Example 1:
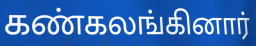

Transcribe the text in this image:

கண்கலங்கினார்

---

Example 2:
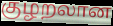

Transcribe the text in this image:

குழறலான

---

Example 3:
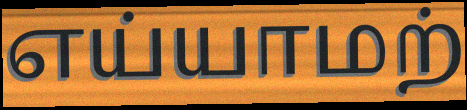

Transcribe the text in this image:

எய்யாமற்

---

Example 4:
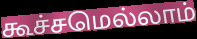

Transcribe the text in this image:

கூச்சமெல்லாம்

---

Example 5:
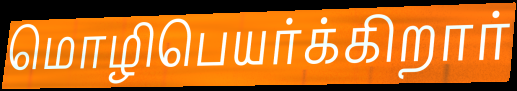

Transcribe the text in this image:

மொழிபெயர்க்கிறார்